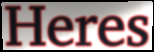
Heres